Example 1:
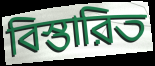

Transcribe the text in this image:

বিস্তারিত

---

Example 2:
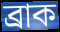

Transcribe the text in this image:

ব্রাক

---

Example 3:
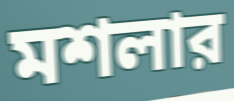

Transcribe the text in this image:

মশলার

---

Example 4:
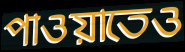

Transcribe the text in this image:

পাওয়াতেও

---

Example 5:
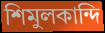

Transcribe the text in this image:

শিমুলকান্দি